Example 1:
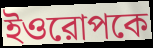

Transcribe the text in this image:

ইওরোপকে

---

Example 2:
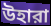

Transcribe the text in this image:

উহারা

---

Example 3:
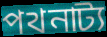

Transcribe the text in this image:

পথনাট্য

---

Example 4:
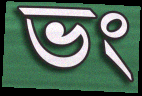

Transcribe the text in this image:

ভং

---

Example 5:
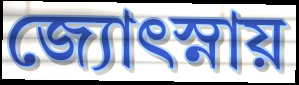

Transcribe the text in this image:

জ্যোৎস্নায়